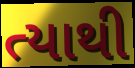
ત્યાથી